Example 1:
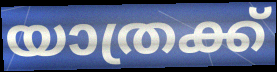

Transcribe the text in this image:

യാത്രക്ക്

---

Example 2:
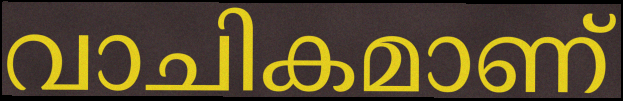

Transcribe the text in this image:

വാചികമാണ്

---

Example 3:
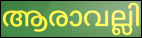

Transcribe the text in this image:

ആരാവല്ലി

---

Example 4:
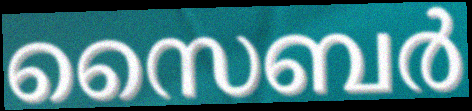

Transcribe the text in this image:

സൈബർ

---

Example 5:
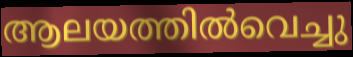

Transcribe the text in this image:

ആലയത്തിൽവെച്ചു